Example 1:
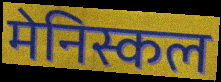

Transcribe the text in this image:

मेनिस्कल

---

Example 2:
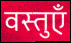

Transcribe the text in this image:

वस्‍तुएँ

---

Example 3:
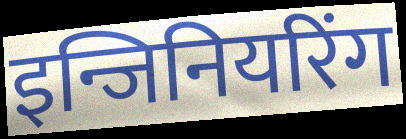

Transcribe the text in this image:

इन्जिनियरिंग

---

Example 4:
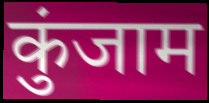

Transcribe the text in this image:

कुंजाम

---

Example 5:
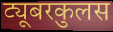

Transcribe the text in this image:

ट्यूबरकुलस